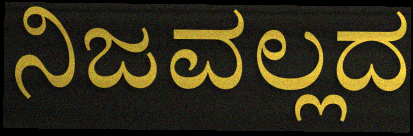
ನಿಜವಲ್ಲದ